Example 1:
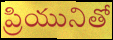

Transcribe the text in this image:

ప్రియునితో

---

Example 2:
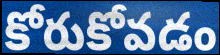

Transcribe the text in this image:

కోరుకోవడం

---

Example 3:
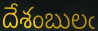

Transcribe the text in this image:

దేశంబులఁ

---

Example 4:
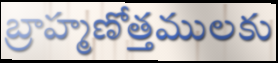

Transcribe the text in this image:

బ్రాహ్మణోత్తములకు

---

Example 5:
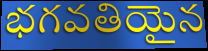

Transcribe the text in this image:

భగవతియైన